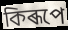
কিৰূপে